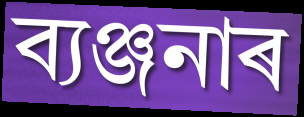
ব্যঞ্জনাৰ